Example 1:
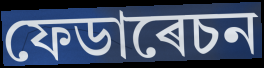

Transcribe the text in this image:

ফেডাৰেচন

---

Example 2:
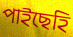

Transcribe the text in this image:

পাইছেহি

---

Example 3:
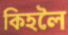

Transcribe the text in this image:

কিহলৈ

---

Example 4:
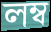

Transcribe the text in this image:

লম্ব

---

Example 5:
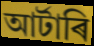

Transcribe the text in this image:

আৰ্টাৰি